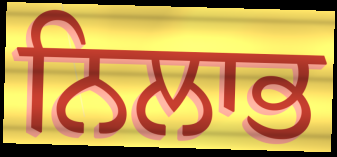
ਨਿਲਾਭ